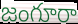
జంగూరా